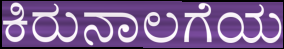
ಕಿರುನಾಲಗೆಯ